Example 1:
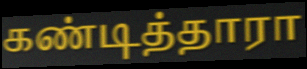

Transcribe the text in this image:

கண்டித்தாரா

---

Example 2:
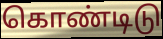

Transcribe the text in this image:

கொண்டிடு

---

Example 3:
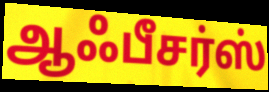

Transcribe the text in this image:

ஆஃபீசர்ஸ்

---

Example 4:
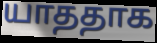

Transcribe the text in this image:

யாததாக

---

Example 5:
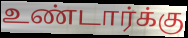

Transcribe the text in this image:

உண்டார்க்கு